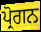
ਪ੍ਰੋਗਨ